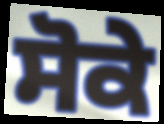
ਸੋਕੇ